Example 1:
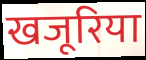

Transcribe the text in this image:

खजूरिया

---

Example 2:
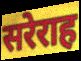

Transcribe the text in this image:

सरेराह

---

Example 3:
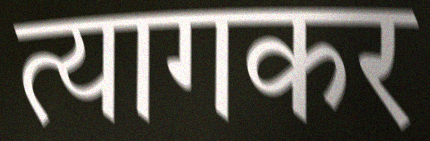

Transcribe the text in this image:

त्यागकर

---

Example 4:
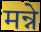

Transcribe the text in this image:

मन्ने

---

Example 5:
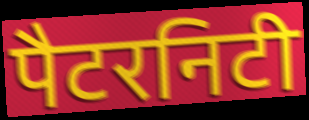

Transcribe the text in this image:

पैटरनिटी